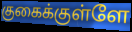
குகைக்குள்ளே